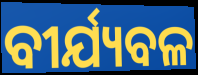
ବୀର୍ଯ୍ୟବଳ